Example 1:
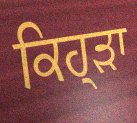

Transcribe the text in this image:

ਕਿਹ੍ੜਾ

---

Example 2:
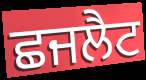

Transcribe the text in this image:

ਛਜਲੈਟ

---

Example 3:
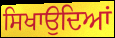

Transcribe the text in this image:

ਸਿਖਾਉਦਿਆਂ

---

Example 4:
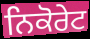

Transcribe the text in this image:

ਨਿਕੋਰੇਟ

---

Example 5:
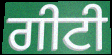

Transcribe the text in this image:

ਗੀਟੀ